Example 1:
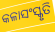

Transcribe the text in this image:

କଳାସଂସ୍କୃତି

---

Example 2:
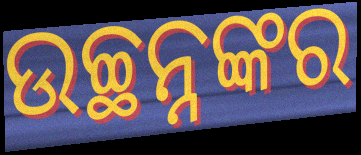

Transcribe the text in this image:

ଉଚ୍ଛନ୍ନଙ୍କର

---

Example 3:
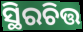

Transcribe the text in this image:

ସ୍ଥିରଚିତ୍ତ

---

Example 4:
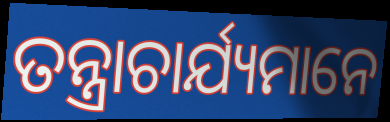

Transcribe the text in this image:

ତନ୍ତ୍ରାଚାର୍ଯ୍ୟମାନେ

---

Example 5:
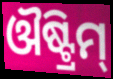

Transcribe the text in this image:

ଔଷ୍ଟ୍ରିମ୍